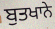
ਬੁਤਖਾਨੇ